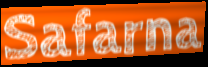
Safarna